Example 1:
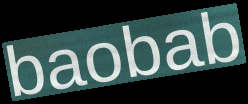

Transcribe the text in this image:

baobab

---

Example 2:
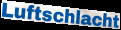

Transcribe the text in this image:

Luftschlacht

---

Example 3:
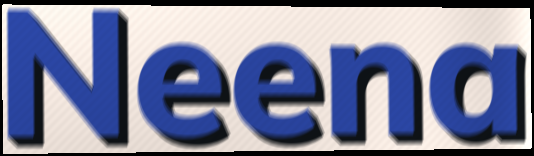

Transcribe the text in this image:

Neena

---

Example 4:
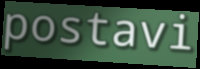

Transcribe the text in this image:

postavi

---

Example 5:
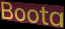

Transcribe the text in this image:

Boota